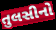
તુલસીનો